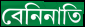
বেনিনাতি